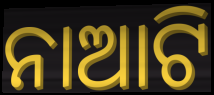
ନାଆଟି